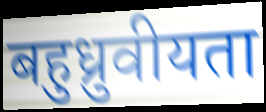
बहुध्रुवीयता